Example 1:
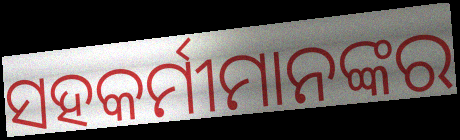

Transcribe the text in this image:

ସହକର୍ମୀମାନଙ୍କର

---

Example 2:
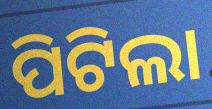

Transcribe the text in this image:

ପିଟିଲା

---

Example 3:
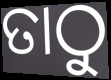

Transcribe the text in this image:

ତାଠୁ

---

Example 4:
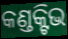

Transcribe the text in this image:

କଣ୍ଡକ୍ଟିଭ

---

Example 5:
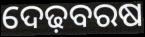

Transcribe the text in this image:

ଦେଢ଼ବରଷ